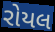
રોયલ